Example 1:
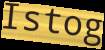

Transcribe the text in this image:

Istog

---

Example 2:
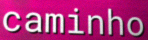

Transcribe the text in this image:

caminho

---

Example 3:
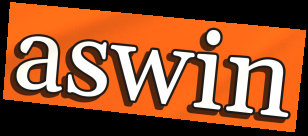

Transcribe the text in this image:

aswin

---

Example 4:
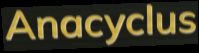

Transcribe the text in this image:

Anacyclus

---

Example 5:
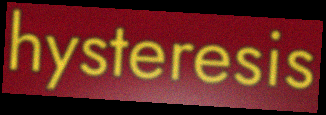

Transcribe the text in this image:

hysteresis